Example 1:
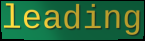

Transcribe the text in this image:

leading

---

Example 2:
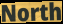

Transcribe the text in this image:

North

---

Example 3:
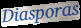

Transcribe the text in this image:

Diasporas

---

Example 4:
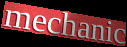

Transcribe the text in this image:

mechanic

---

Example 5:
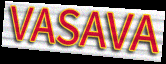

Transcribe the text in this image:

VASAVA